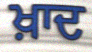
ਖ਼ਾਦ